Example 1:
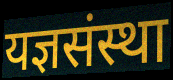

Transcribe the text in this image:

यज्ञसंस्था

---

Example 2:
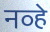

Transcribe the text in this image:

नव्हे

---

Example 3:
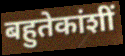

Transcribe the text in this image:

बहुतेकांशीं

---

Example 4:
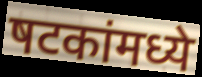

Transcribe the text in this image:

षटकांमध्ये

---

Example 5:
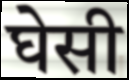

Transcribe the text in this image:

घेसी